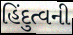
હિંદુત્વની